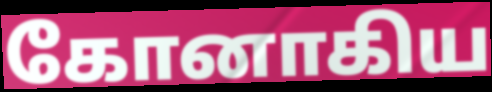
கோனாகிய